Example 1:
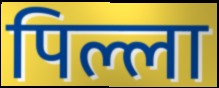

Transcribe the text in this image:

पिल्ला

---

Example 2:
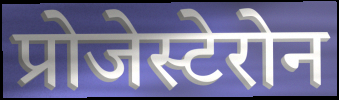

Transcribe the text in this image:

प्रोजेस्टेरोन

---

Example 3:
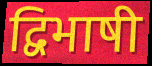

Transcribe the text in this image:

द्विभाषी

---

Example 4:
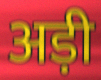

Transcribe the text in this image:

अड़ी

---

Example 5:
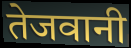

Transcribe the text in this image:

तेजवानी